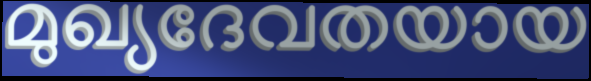
മുഖ്യദേവതയായ